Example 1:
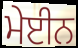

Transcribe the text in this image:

ਮੇਈਨ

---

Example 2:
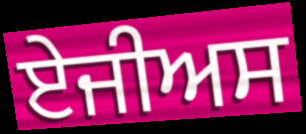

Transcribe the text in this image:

ਏਜੀਅਸ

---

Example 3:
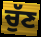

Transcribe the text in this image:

ਚੁੱਣ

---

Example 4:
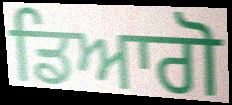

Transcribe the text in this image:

ਡਿਆਗੋ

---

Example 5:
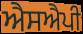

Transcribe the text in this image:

ਐਸਐਪੀ